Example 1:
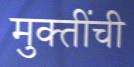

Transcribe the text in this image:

मुक्तींची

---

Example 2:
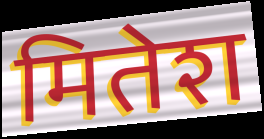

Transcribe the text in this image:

मितेश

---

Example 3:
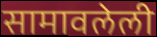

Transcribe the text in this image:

सामावलेली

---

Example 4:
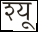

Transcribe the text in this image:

श्यू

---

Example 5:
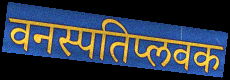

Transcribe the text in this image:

वनस्पतिप्लवक